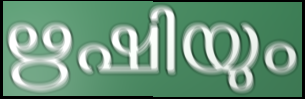
ഋഷിയും